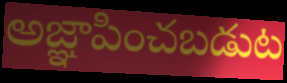
అజ్ఞాపించబడుట